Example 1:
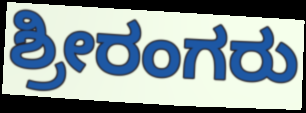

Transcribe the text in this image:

ಶ್ರೀರಂಗರು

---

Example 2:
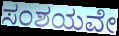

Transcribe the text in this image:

ಸಂಶಯವೇ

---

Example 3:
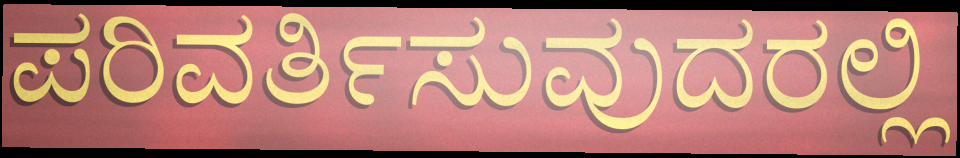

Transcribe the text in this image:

ಪರಿವರ್ತಿಸುವುದರಲ್ಲಿ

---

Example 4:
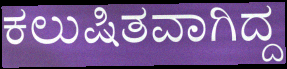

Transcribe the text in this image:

ಕಲುಷಿತವಾಗಿದ್ದ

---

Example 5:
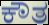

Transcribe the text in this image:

ಕೌತ